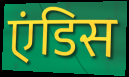
एंडिस